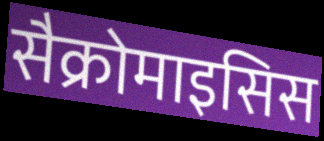
सैक्रोमाइसिस